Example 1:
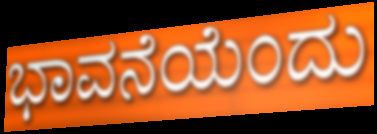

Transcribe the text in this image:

ಭಾವನೆಯೆಂದು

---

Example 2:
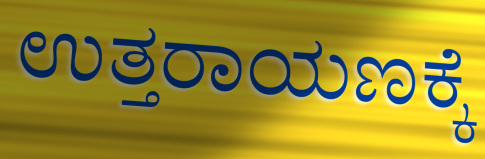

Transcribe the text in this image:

ಉತ್ತರಾಯಣಕ್ಕೆ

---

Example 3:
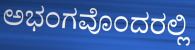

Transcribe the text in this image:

ಅಭಂಗವೊಂದರಲ್ಲಿ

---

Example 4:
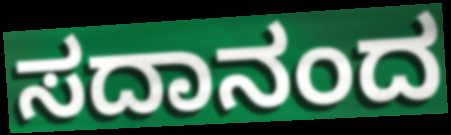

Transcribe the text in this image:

ಸದಾನಂದ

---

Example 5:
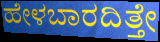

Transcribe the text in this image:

ಹೇಳಬಾರದಿತ್ತೇ